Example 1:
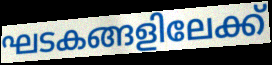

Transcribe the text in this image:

ഘടകങ്ങളിലേക്ക്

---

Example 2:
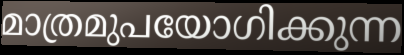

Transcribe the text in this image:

മാത്രമുപയോഗിക്കുന്ന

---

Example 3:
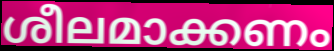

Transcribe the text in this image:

ശീലമാക്കണം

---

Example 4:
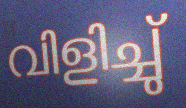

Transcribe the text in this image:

വിളിച്ചു്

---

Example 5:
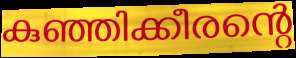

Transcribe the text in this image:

കുഞ്ഞിക്കീരന്റെ